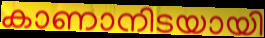
കാണാനിടയായി